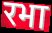
रभा